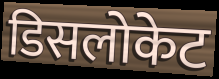
डिसलोकेट